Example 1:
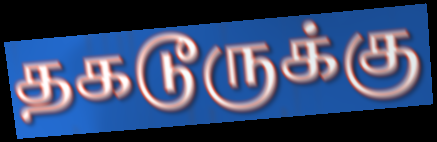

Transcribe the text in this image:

தகடூருக்கு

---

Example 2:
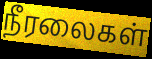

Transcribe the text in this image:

நீரலைகள்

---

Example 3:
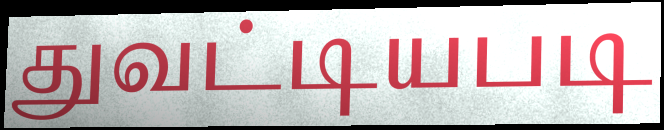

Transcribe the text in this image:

துவட்டியபடி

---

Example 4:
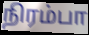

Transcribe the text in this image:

நிரம்பா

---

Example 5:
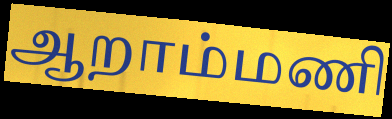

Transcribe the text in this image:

ஆறாம்மணி